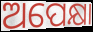
ଅପେକ୍ଷା